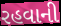
રહવાની